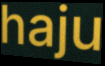
haju